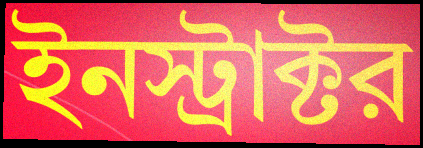
ইনস্ট্রাক্টর